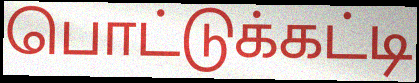
பொட்டுக்கட்டி